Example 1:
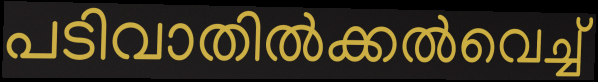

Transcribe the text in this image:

പടിവാതിൽക്കൽവെച്ച്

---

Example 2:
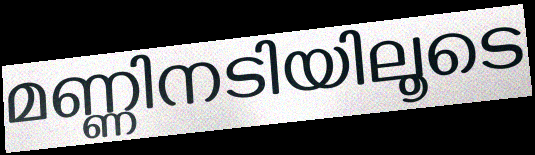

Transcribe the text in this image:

മണ്ണിനടിയിലൂടെ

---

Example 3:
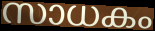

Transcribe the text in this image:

സാധകം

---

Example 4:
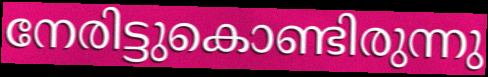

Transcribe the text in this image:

നേരിട്ടുകൊണ്ടിരുന്നു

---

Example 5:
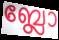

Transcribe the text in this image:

ബ്ലോ